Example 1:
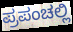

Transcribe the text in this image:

ಪ್ರಪಂಚಲ್ಲಿ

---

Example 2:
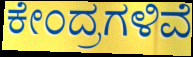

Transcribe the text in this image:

ಕೇಂದ್ರಗಳಿವೆ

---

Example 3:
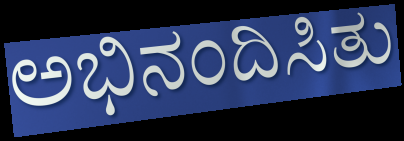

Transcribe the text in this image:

ಅಭಿನಂದಿಸಿತು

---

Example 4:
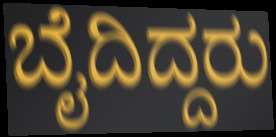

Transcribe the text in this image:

ಬೈದಿದ್ದರು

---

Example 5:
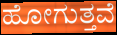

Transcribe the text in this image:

ಹೋಗುತ್ತವೆ